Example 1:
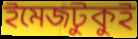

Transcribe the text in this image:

ইমেজটুকুই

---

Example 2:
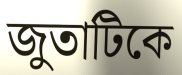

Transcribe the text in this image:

জুতাটিকে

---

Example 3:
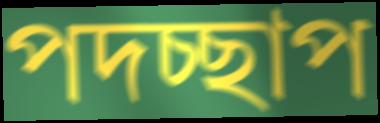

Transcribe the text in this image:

পদচ্ছাপ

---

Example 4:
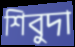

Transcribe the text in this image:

শিবুদা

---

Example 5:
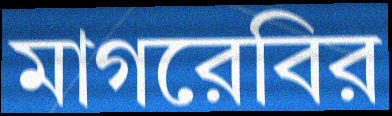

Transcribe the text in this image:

মাগরেবির